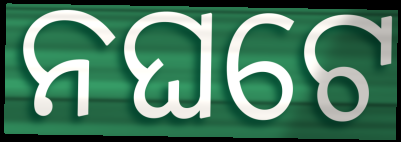
ନଘଟେ